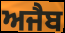
ਅਜੈਬ